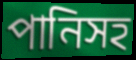
পানিসহ